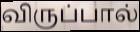
விருப்பால்